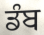
ਡੰਬ